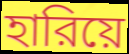
হারিয়ে